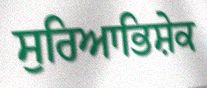
ਸੁਰਿਆਭਿਸ਼ੇਕ